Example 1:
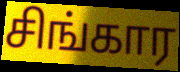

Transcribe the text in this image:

சிங்கார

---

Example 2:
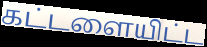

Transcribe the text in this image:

கட்டளையிட்ட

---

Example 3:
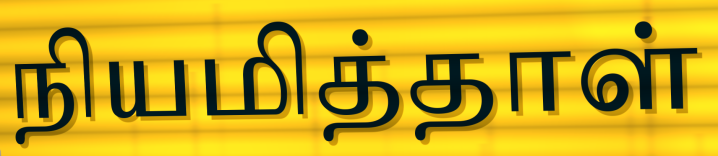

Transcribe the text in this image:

நியமித்தாள்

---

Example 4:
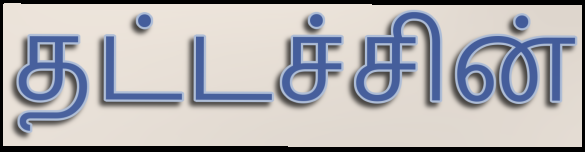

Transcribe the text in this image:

தட்டச்சின்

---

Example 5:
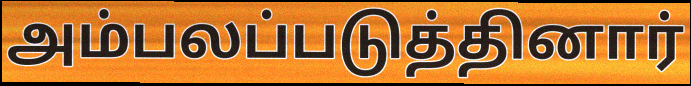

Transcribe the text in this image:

அம்பலப்படுத்தினார்